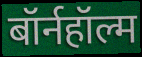
बॉर्नहॉल्म